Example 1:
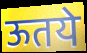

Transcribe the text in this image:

ऊतये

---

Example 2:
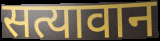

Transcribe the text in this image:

सत्यावान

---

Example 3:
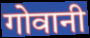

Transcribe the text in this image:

गोवानी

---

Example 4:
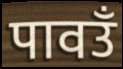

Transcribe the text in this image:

पावउँ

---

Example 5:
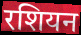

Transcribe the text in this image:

रशियन